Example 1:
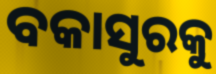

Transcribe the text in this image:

ବକାସୁରକୁ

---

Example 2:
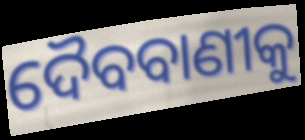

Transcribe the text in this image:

ଦୈବବାଣୀକୁ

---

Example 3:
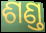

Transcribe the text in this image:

ଶଣ୍ଡ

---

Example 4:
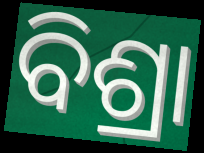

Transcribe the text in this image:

ବିଶ୍ରା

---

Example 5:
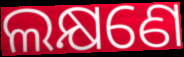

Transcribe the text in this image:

ଲକ୍ଷଣେ